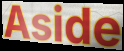
Aside